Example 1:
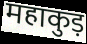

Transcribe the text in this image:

महाकुड़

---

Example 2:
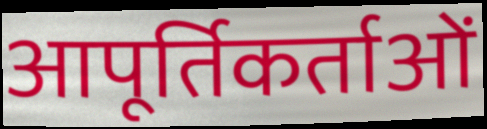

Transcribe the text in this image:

आपूर्तिकर्ताओं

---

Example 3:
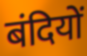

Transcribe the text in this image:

बंदियों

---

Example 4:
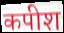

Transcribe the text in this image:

कपीश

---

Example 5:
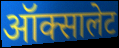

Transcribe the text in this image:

ऑक्सालेट